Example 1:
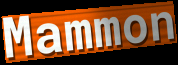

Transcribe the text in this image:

Mammon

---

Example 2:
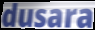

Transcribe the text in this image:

dusara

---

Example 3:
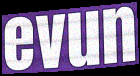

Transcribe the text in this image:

evun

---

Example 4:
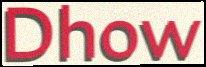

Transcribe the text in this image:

Dhow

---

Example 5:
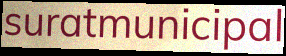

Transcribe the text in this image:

suratmunicipal